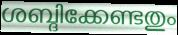
ശബ്ദിക്കേണ്ടതും